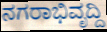
ನಗರಾಭಿವೃದ್ದಿ